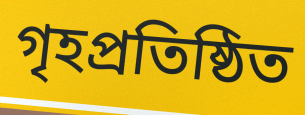
গৃহপ্রতিষ্ঠিত